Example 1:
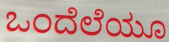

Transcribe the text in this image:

ಒಂದೆಲೆಯೂ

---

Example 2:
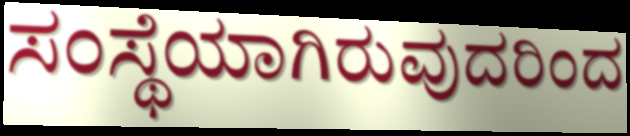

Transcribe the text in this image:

ಸಂಸ್ಥೆಯಾಗಿರುವುದರಿಂದ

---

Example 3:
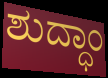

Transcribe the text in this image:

ಶುದ್ಧಾಂ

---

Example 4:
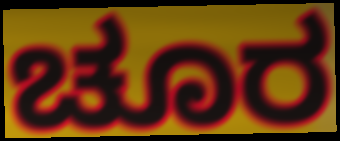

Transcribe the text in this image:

ಚೂರ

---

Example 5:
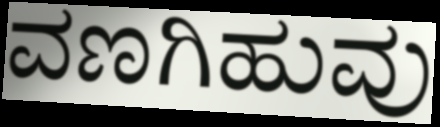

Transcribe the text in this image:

ವಣಗಿಹುವು